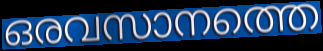
ഒരവസാനത്തെ